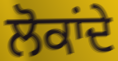
ਲੋਕਾਂਦੇ